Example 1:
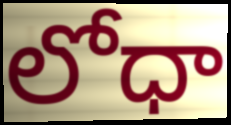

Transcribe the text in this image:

లోధా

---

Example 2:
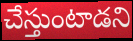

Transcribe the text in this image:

చేస్తుంటాడని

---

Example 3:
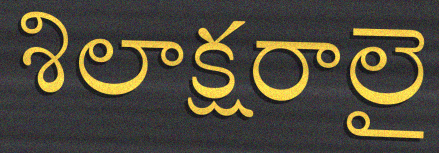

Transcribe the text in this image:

శిలాక్షరాలై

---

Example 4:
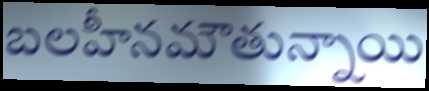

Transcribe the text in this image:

బలహీనమౌతున్నాయి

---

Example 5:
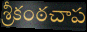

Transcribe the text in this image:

శ్రీకంఠచాప